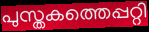
പുസ്തകത്തെപ്പറ്റി